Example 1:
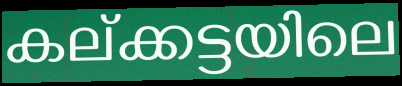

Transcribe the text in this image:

കല്ക്കട്ടയിലെ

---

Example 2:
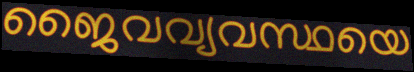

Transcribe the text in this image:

ജൈവവ്യവസ്ഥയെ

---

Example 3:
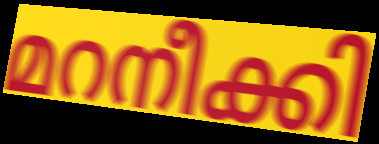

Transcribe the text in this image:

മറനീക്കി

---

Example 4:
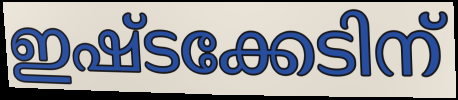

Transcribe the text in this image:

ഇഷ്ടക്കേടിന്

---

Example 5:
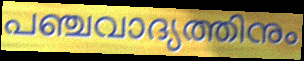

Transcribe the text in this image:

പഞ്ചവാദ്യത്തിനും